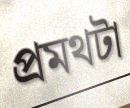
প্রমথটা